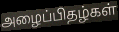
அழைப்பிதழ்கள்